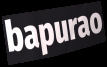
bapurao